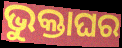
ଭୁକ୍ତାଘର